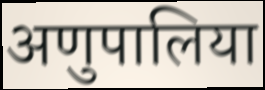
अणुपालिया